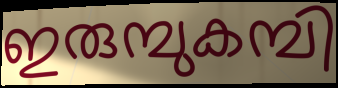
ഇരുമ്പുകമ്പി